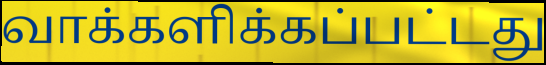
வாக்களிக்கப்பட்டது